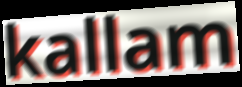
kallam